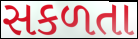
સકળતા